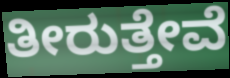
ತೀರುತ್ತೇವೆ